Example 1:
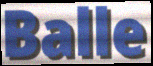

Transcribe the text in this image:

Balle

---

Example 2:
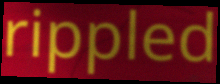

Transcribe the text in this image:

rippled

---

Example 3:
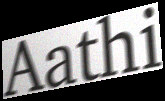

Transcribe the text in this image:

Aathi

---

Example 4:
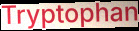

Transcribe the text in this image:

Tryptophan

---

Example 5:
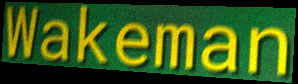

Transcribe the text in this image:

Wakeman